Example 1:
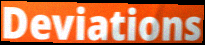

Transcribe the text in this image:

Deviations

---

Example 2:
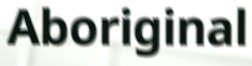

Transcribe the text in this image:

Aboriginal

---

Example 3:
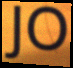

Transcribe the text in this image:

JO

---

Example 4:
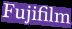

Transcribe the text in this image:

Fujifilm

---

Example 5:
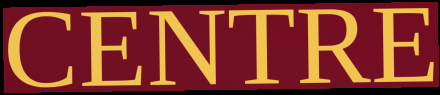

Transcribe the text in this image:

CENTRE